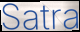
Satra